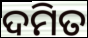
ଦମିତ